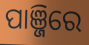
ପାଞ୍ଜିରେ